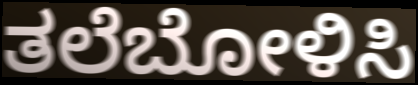
ತಲೆಬೋಳಿಸಿ